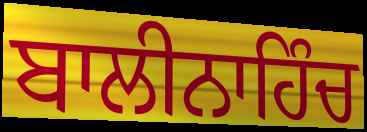
ਬਾਲੀਨਾਹਿੰਚ